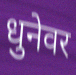
धुनेवर